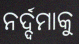
ନର୍ଦ୍ଦମାକୁ